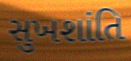
સુખશાંતિ